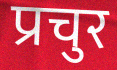
प्रचुर